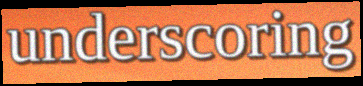
underscoring